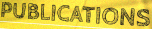
PUBLICATIONS